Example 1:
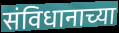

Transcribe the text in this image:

संविधानाच्या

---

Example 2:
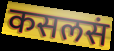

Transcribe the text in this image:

कसलसं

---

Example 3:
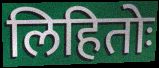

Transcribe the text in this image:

लिहितोः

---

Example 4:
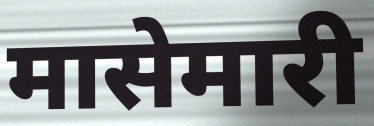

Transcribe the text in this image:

मासेमारी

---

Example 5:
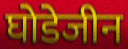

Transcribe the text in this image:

घोडेजीन